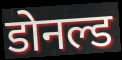
डोनल्‍ड